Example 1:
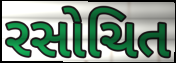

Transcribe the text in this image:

રસોચિત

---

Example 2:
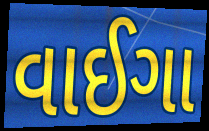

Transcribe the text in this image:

વાઈગા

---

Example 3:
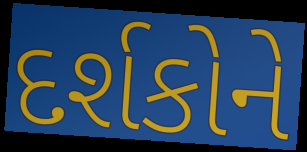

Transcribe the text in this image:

દર્શકોને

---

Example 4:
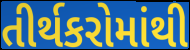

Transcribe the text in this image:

તીર્થકરોમાંથી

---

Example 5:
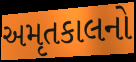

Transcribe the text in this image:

અમૃતકાલનો